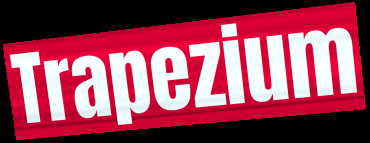
Trapezium